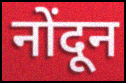
नोंदून